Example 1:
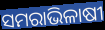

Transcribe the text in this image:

ସମରାଭିଳାଷୀ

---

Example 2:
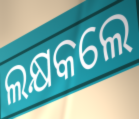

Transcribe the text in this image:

ଲକ୍ଷକଲେ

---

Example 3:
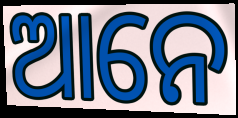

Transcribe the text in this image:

ଆନେ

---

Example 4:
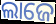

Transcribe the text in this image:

ଲାଜେ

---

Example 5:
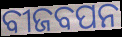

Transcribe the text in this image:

ବୀଜବପନ